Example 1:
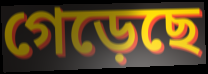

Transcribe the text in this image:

গেড়েছে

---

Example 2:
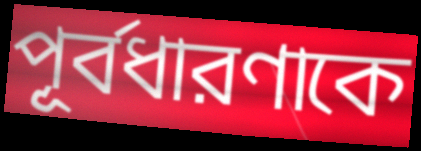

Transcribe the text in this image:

পূর্বধারণাকে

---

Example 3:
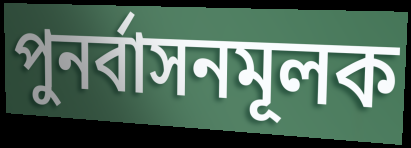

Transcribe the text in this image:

পুনর্বাসনমূলক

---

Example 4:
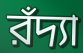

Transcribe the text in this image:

রঁদ্যা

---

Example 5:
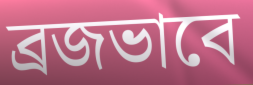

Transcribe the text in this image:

ব্রজভাবে